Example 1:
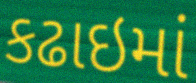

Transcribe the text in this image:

કઢાઇમાં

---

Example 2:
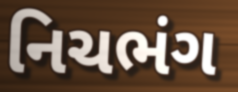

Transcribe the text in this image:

નિચભંગ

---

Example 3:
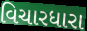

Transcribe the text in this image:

વિચારધારા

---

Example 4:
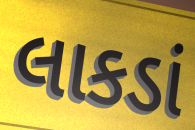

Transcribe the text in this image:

લાકડાં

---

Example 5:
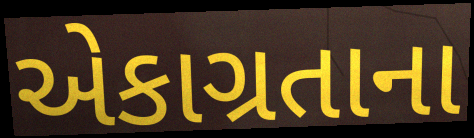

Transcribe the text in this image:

એકાગ્રતાના